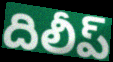
దిలీప్